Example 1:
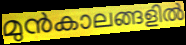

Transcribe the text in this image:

മുൻകാലങ്ങളിൽ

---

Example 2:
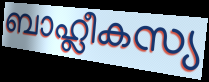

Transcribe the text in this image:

ബാഹ്ലീകസ്യ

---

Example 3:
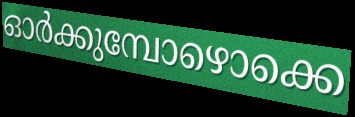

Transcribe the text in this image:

ഓർക്കുമ്പോഴൊക്കെ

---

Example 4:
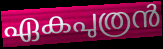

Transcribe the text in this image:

ഏകപുത്രൻ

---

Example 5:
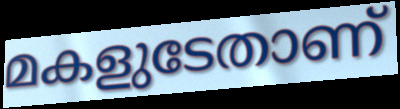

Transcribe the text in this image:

മകളുടേതാണ്